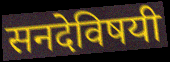
सनदेविषयी